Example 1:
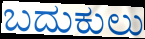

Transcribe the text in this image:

ಬದುಕುಲು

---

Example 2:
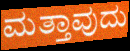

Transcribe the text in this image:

ಮತ್ತಾವುದು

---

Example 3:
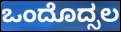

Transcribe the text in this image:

ಒಂದೊದ್ಸಲ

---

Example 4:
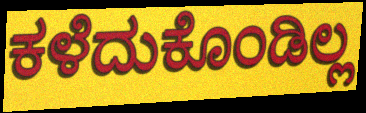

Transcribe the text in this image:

ಕಳೆದುಕೊಂಡಿಲ್ಲ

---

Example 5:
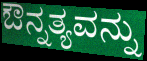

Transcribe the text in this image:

ಔನ್ನತ್ಯವನ್ನು